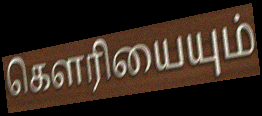
கௌரியையும்